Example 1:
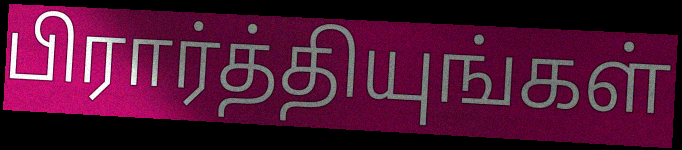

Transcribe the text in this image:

பிரார்த்தியுங்கள்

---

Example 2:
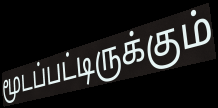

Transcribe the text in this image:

மூடப்பட்டிருக்கும்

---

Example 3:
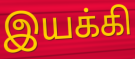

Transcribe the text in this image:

இயக்கி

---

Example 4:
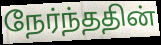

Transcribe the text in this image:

நேர்ந்ததின்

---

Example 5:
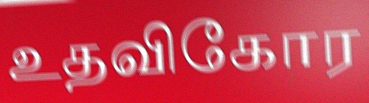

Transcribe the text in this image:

உதவிகோர